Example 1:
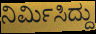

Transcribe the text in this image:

ನಿರ್ಮಿಸಿದ್ದು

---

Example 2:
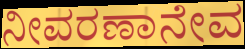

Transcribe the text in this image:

ನೀವರಣಾನೇವ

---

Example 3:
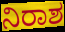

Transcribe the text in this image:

ನಿರಾಶ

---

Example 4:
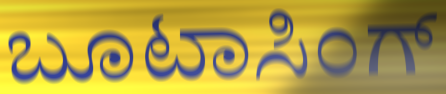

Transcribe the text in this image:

ಬೂಟಾಸಿಂಗ್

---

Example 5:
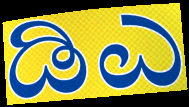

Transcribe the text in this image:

ಡಿಎ